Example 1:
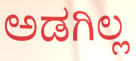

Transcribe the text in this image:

ಅಡಗಿಲ್ಲ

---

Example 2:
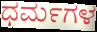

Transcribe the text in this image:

ಧರ್ಮಗಳ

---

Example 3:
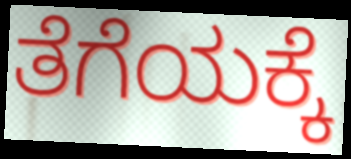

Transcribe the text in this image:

ತೆಗೆಯಕ್ಕೆ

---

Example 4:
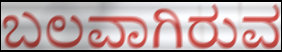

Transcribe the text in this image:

ಬಲವಾಗಿರುವ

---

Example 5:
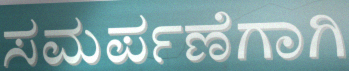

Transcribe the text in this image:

ಸಮರ್ಪಣೆಗಾಗಿ